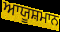
ਆਯੂਸ਼ਮਾਨ